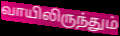
வாயிலிருந்தும்